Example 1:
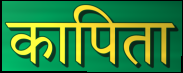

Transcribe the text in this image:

कापिता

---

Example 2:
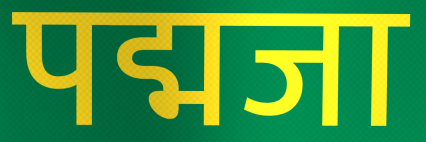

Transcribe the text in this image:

पद्मजा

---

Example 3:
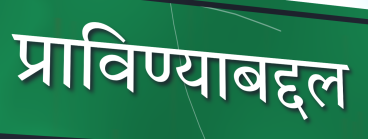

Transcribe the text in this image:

प्राविण्याबद्दल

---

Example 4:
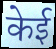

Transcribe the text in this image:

केई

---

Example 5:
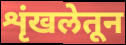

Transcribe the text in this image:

शृंखलेतून